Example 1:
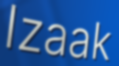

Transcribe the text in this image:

Izaak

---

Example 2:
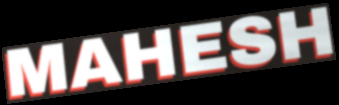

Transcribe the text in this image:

MAHESH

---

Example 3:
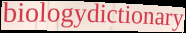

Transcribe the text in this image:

biologydictionary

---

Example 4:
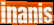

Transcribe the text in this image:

inanis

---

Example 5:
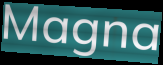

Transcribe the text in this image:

Magna